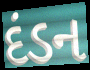
દંડન